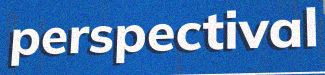
perspectival